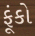
ફૂંકો